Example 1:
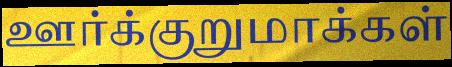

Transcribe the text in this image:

ஊர்க்குறுமாக்கள்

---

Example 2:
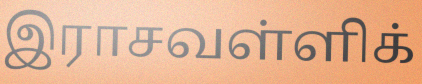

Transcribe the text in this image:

இராசவள்ளிக்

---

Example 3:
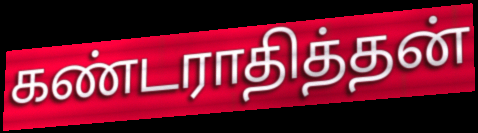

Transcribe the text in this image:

கண்டராதித்தன்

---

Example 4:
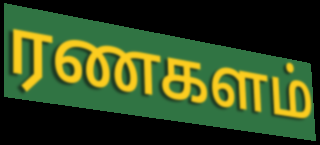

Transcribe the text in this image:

ரணகளம்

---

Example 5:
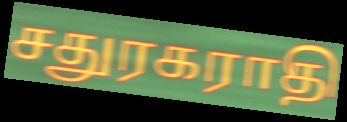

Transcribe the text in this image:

சதுரகராதி